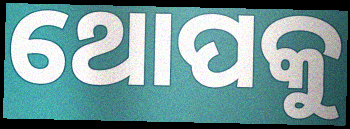
ଥୋପକୁ